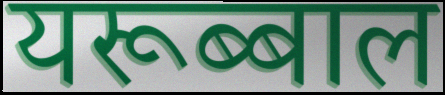
यरूब्बाल